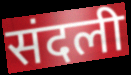
संदली